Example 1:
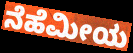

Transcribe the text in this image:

ನೆಹೆಮೀಯ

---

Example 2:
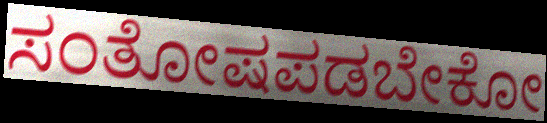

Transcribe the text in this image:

ಸಂತೋಷಪಡಬೇಕೋ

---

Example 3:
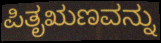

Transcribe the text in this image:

ಪಿತೃಋಣವನ್ನು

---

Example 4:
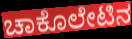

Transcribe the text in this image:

ಚಾಕೊಲೇಟಿನ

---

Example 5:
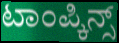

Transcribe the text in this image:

ಟಾಂಪ್ಕಿನ್ಸ್